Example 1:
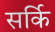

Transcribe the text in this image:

सर्कि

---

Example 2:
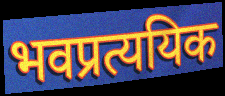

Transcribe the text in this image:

भवप्रत्ययिक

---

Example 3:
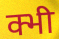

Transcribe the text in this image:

क्भी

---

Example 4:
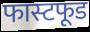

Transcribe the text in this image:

फास्‍टफूड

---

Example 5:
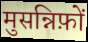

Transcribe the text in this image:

मुसन्निफ़ों